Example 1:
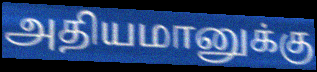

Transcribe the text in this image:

அதியமானுக்கு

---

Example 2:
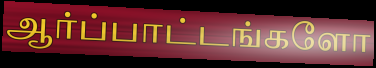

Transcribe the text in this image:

ஆர்ப்பாட்டங்களோ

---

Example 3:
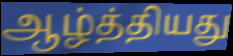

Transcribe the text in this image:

ஆழ்த்தியது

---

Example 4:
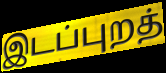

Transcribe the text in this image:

இடப்புறத்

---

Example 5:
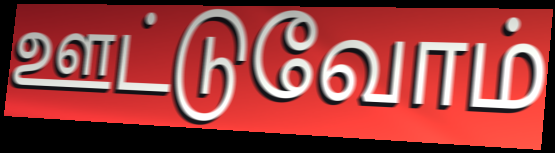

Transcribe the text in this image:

ஊட்டுவோம்